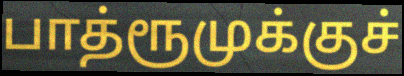
பாத்ரூமுக்குச்